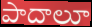
పాదాలూ